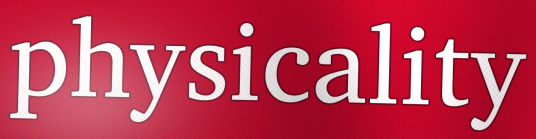
physicality